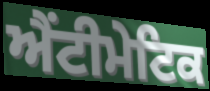
ਐਂਟੀਮੇਟਿਕ